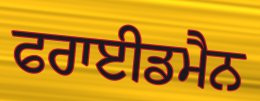
ਫਰਾਈਡਮੈਨ